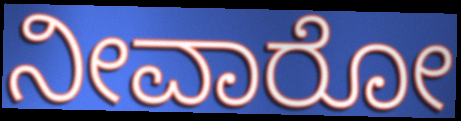
ನೀವಾರೋ